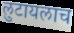
लुटायलाच